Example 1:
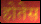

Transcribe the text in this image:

होतेस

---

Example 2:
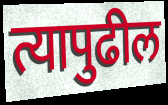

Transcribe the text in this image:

त्यापुढील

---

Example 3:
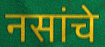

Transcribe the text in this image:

नसांचे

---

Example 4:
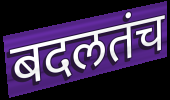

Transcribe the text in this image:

बदलतंच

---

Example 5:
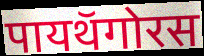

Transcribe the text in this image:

पायथॅगोरस